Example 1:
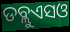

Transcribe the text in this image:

ଡବ୍ଲୁଏସଓ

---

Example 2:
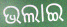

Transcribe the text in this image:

ଭଲାଇ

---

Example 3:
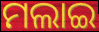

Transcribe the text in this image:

ମଲାଇ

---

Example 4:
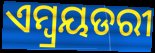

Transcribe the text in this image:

ଏମ୍ବ୍ରୟଡରୀ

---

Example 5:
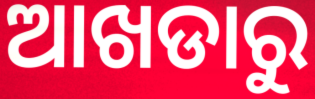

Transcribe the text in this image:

ଆଖଡାରୁ